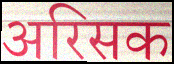
अरिसक